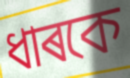
ধাৰকে